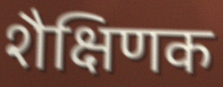
शैक्षिणक